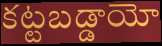
కట్టబడ్డాయో